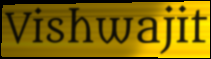
Vishwajit